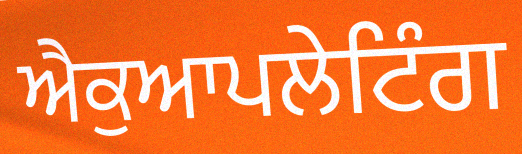
ਐਕੁਆਪਲੇਟਿੰਗ